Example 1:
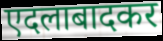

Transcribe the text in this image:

एदलाबादकर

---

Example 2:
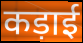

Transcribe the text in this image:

कड़ाई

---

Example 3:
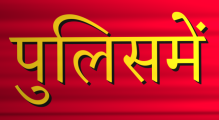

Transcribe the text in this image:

पुलिसमें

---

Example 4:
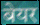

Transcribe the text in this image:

बेयर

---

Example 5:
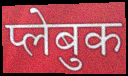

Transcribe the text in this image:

प्लेबुक